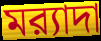
মর‍্যাদা